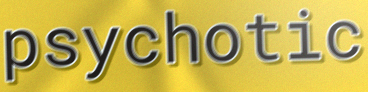
psychotic